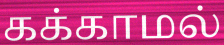
கக்காமல்